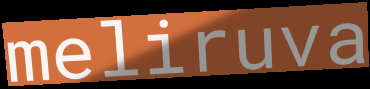
meliruva